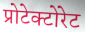
प्रोटेक्टोरेट